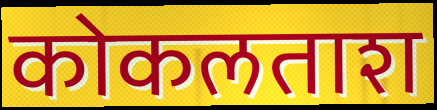
कोकलताश